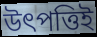
উৎপত্তিই